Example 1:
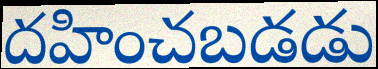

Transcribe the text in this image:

దహించబడడు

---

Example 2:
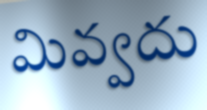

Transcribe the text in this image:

మివ్వదు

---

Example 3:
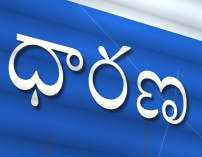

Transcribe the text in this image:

ధారణ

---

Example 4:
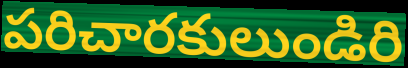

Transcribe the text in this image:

పరిచారకులుండిరి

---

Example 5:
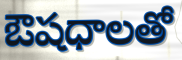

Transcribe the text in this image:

ఔషధాలతో